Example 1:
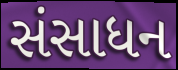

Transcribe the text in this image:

સંસાધન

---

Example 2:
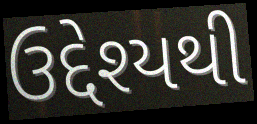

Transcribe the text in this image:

ઉદ્દેશ્યથી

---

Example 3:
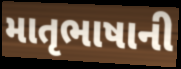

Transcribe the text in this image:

માતૃભાષાની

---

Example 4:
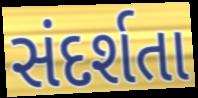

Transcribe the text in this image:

સંદર્શતા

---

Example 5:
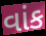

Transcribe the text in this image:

વાંક